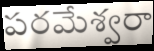
పరమేశ్వరా